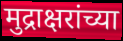
मुद्राक्षरांच्या